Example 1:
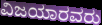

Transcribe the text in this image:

ವಿಜಯಾರವರು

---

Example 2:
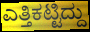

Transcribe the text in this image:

ಎತ್ತಿಕಟ್ಟಿದ್ದು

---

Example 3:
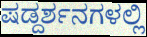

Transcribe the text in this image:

ಷಡ್ದರ್ಶನಗಳಲ್ಲಿ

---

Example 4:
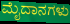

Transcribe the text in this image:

ಮೈದಾನಗಳು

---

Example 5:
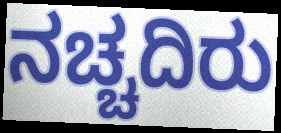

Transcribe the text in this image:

ನಚ್ಚದಿರು